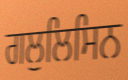
ਗਲੁਲਿਸਿਨ